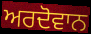
ਅਰਦੋਵਾਨ